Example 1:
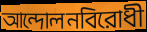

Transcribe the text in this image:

আন্দোলনবিরোধী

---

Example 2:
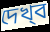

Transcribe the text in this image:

দেখ্‌ব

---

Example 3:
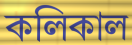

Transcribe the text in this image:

কলিকাল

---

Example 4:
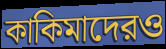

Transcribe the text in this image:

কাকিমাদেরও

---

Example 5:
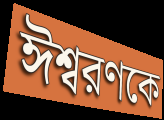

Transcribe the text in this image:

ঈশ্বরণকে